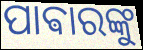
ପାଵାରଙ୍କୁ